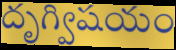
దృగ్విషయం